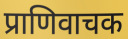
प्राणिवाचक